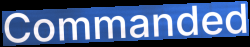
Commanded